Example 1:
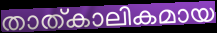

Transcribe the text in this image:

താത്കാലികമായ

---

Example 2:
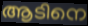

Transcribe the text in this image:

ആടിനെ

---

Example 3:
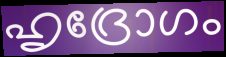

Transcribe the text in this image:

ഹൃദ്രോഗം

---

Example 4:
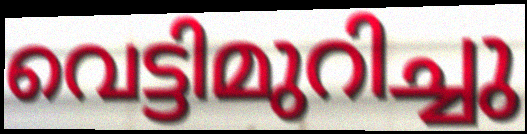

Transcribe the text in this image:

വെട്ടിമുറിച്ചു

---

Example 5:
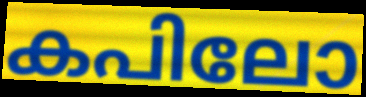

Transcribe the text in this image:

കപിലോ